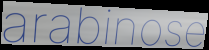
arabinose